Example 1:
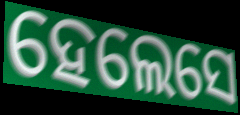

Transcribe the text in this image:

ହେଲେସେ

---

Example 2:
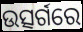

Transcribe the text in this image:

ଉତ୍ସର୍ଗରେ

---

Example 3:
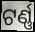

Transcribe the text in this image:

ଟର୍ଣ୍ଣ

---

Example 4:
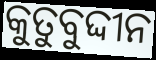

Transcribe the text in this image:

କୁତୁବୁଦ୍ଦୀନ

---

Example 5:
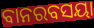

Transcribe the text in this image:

ବାନରବସୟା